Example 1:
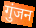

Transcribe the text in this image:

गुंजन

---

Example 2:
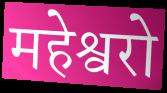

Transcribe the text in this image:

महेश्वरो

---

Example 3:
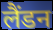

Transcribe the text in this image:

लैंडन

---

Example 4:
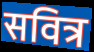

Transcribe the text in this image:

सवित्र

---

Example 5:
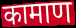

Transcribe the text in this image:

कामाण